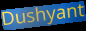
Dushyant